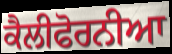
ਕੈਲੀਫੋਰਨੀਆ